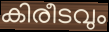
കിരീടവും